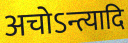
अचोऽन्त्यादि